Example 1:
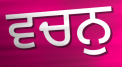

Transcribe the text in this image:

ਵਚਨੁ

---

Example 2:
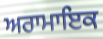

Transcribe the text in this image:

ਅਰਾਮਾਇਕ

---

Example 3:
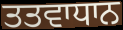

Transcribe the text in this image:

ਤਤਵਾਧਾਨ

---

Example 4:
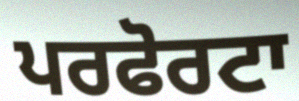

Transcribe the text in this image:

ਪਰਫੋਰਟਾ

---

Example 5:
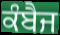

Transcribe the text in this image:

ਕੰਬੈਜ